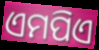
ଏମପିଏ